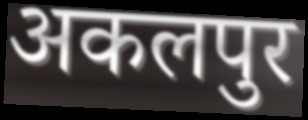
अकलपुर